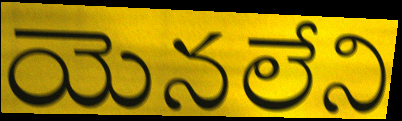
యెనలేని